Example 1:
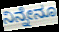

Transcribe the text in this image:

ನಿನ್ನೇನೂ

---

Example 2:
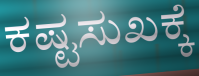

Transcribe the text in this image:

ಕಷ್ಟಸುಖಕ್ಕೆ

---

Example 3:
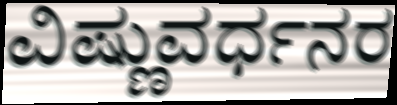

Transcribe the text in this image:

ವಿಷ್ಣುವರ್ಧನರ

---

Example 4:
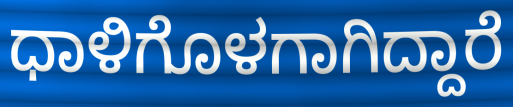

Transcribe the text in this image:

ಧಾಳಿಗೊಳಗಾಗಿದ್ದಾರೆ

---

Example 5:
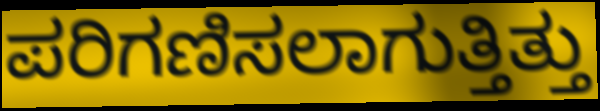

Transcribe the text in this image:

ಪರಿಗಣಿಸಲಾಗುತ್ತಿತ್ತು